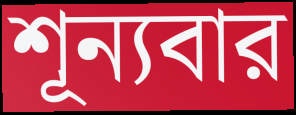
শূন্যবার